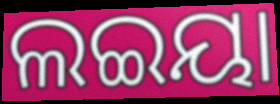
ଲଇୟା